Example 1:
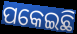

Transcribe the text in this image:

ପକେଇଛି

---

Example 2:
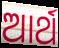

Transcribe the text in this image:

ଆର୍ଥ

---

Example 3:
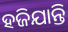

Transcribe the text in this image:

ହଜିଯାନ୍ତି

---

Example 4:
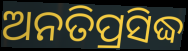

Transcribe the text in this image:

ଅନତିପ୍ରସିଦ୍ଧ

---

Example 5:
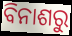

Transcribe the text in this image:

ବିନାଶରୁ